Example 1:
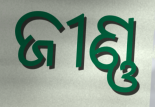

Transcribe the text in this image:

ଜୀଣ୍ଣ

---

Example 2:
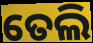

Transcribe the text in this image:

ତେଲି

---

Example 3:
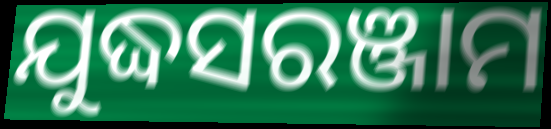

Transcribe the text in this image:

ଯୁଦ୍ଧସରଞ୍ଜାମ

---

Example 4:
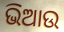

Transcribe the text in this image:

ଭିଆଉ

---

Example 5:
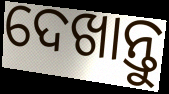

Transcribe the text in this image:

ଦେଖାନ୍ତୁ